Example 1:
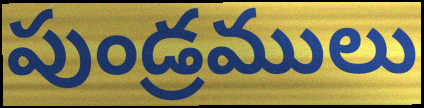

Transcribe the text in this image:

పుండ్రములు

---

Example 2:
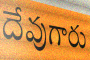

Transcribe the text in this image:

దేవుగారు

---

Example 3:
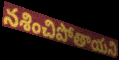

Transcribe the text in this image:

నశించిపోతాయని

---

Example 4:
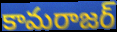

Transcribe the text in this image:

కామరాజర్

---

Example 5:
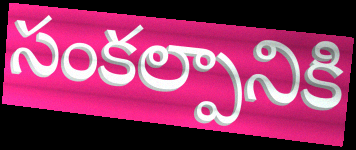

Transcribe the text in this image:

సంకల్పానికి